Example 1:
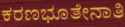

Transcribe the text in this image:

ಕರಣಭೂತೇನಾತಿ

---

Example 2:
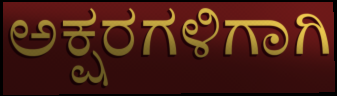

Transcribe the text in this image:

ಅಕ್ಷರಗಳಿಗಾಗಿ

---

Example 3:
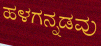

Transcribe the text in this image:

ಹಳಗನ್ನಡವು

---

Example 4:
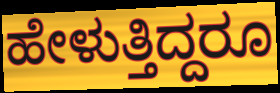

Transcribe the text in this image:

ಹೇಳುತ್ತಿದ್ದರೂ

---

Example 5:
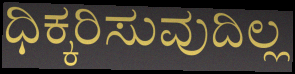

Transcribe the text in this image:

ಧಿಕ್ಕರಿಸುವುದಿಲ್ಲ